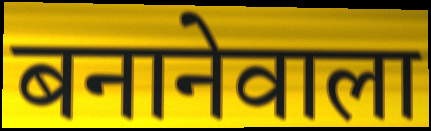
बनानेवाला